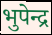
भुपेन्द्र